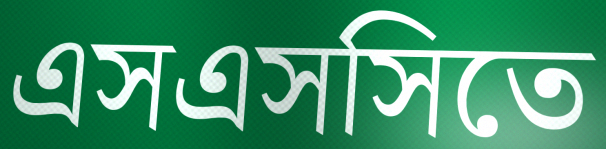
এসএসসিতে